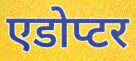
एडोप्टर